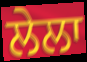
ਲੇਲਾ